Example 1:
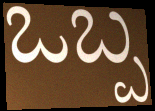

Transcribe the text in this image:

ಒಬ್ಪ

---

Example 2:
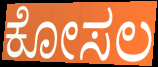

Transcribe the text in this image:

ಕೋಸಲ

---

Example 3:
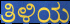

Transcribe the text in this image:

ತಿಳಿಯ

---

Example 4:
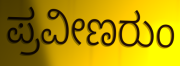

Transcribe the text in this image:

ಪ್ರವೀಣರುಂ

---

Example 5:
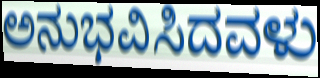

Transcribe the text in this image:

ಅನುಭವಿಸಿದವಳು